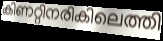
കിണറ്റിനരികിലെത്തി